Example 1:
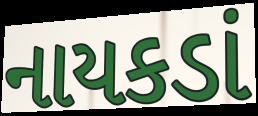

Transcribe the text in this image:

નાયકડાં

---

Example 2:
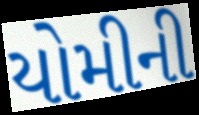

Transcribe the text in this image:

યોમીની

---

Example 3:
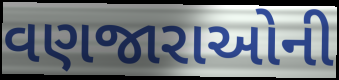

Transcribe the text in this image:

વણજારાઓની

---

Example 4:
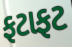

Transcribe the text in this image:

ફટાફટ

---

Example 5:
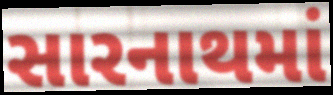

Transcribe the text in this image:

સારનાથમાં